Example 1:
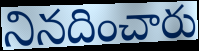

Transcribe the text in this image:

నినదించారు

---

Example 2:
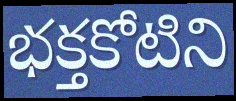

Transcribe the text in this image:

భక్తకోటిని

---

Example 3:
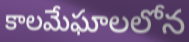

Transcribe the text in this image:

కాలమేఘాలలోన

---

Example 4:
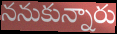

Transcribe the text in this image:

ననుకున్నారు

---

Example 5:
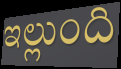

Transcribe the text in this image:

ఇల్లుంది